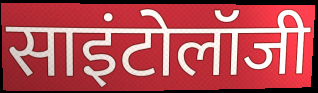
साइंटोलॉजी